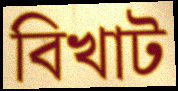
বিখাট